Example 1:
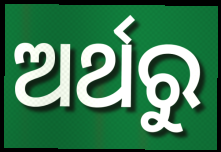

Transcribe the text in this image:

ଅର୍ଥରୁ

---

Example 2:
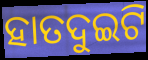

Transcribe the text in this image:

ହାତଦୁଇଟି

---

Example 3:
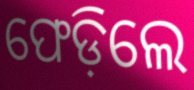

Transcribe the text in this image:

ଫେଡ଼ିଲେ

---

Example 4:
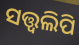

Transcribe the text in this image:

ସତ୍ତ୍ୱଲିପି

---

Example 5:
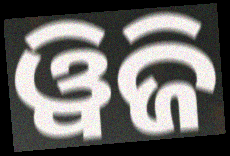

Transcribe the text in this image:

ୱିଜି